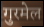
गुरमेल